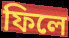
ফিলে